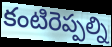
కంటిరెప్పల్ని